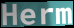
Herm